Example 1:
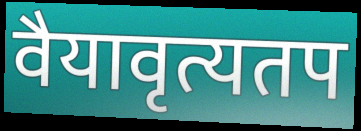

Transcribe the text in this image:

वैयावृत्यतप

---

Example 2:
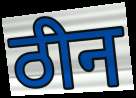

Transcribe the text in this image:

ठीन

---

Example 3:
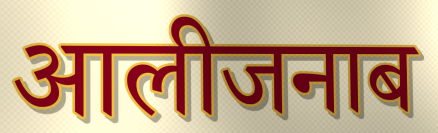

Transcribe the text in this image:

आलीजनाब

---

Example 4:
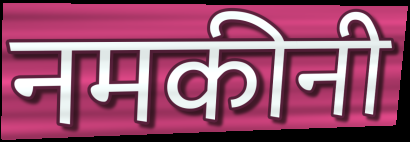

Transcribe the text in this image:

नमकीनी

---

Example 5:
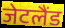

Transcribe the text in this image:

जेटलैंड